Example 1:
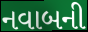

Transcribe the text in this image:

નવાબની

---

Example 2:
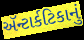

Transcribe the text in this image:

ઍન્ટાર્કટિકાનું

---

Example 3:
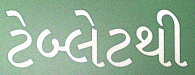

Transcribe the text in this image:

ટેબ્લેટથી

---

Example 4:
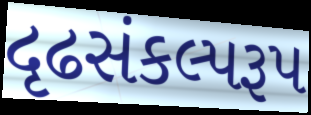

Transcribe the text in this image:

દૃઢસંકલ્પરૂપ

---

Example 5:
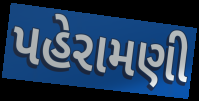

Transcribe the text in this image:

પહેરામણી